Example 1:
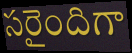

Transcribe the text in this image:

సరైందిగా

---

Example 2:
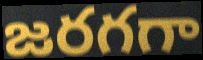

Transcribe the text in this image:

జరగగా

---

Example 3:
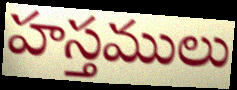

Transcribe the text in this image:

హస్తములు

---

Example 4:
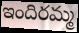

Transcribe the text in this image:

ఇందిరమ్మ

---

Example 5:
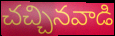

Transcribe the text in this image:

చచ్చినవాడి